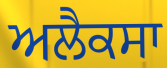
ਅਲੈਕਸਾ